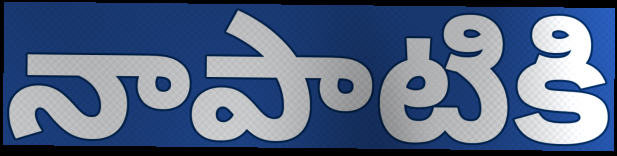
నాపాటికి